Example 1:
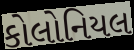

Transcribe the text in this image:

કોલોનિયલ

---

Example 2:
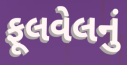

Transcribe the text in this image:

ફૂલવેલનું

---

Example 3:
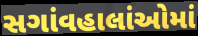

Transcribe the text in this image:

સગાંવહાલાંઓમાં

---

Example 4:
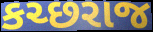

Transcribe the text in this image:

કચ્છરાજ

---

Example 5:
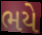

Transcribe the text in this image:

ભયે